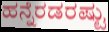
ಹನ್ನೆರಡರಷ್ಟು